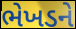
ભેખડને